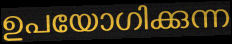
ഉപയോഗിക്കുന്ന